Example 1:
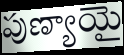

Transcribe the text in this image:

పుణ్యాయై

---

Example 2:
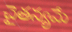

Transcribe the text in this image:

చైతన్యమే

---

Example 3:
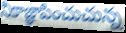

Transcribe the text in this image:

నీకాజ్ఞాపించుచున్న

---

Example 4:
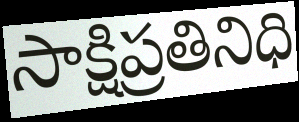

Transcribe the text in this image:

సాక్షిప్రతినిధి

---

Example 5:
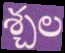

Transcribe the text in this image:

శ్చల